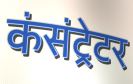
कंसंट्रेटर